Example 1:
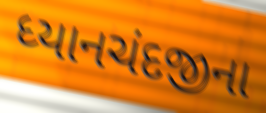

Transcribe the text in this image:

ધ્યાનચંદજીના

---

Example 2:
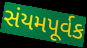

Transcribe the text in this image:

સંયમપૂર્વક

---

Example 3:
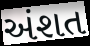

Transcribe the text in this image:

અંશત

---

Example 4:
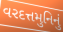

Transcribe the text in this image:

વરદત્તમુનિનું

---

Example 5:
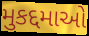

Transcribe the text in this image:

મુકદ્દમાઓ